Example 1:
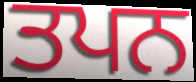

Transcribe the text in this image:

ਤਪਨ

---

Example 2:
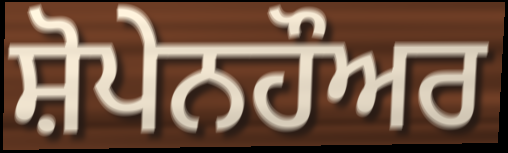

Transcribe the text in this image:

ਸ਼ੋਪੇਨਹੌਅਰ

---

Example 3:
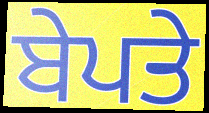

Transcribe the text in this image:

ਬੇਪਤੇ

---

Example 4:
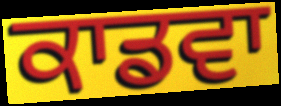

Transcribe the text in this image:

ਕਾਡਵਾ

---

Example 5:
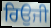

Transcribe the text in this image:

ਰਿਉਜੀ